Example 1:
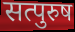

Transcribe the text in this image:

सत्पुरुष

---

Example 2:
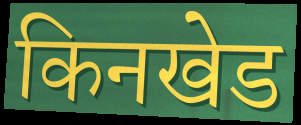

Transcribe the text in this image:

किनखेड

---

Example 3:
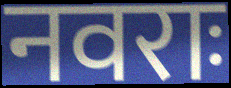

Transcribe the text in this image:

नवराः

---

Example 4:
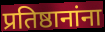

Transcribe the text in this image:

प्रतिष्ठानांना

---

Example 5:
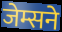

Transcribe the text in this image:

जेम्सने